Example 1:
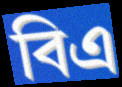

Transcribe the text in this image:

বিএ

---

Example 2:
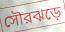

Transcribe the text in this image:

সৌরঝড়ে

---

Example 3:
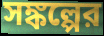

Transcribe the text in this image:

সঙ্কল্পের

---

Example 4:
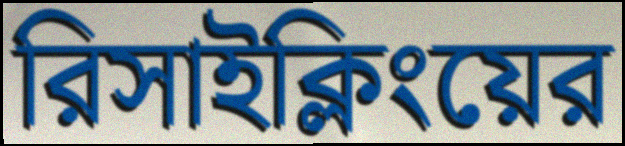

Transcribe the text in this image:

রিসাইক্লিংয়ের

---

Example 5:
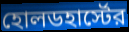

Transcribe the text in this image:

হোলডহার্স্টের